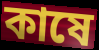
কাষে